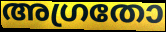
അഗ്രതോ